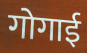
गोगाई